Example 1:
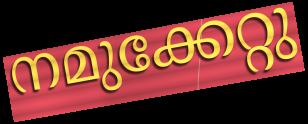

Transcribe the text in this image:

നമുക്കേറ്റു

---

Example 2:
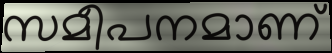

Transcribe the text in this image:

സമീപനമാണ്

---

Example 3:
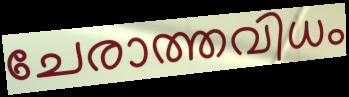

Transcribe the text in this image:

ചേരാത്തവിധം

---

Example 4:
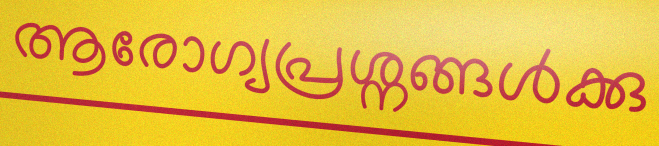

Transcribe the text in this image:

ആരോഗ്യപ്രശ്നങ്ങൾക്കു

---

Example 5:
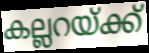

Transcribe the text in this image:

കല്ലറയ്ക്ക്